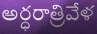
అర్ధరాత్రివేళ